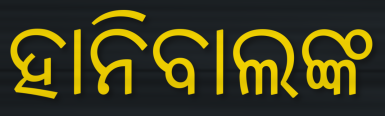
ହାନିବାଲଙ୍କ